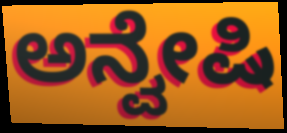
ಅನ್ವೇಷಿ